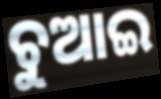
ଚୁଆଇ